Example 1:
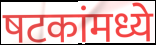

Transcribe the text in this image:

षटकांमध्ये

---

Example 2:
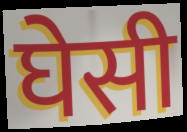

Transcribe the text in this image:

घेसी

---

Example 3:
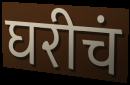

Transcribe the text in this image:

घरीचं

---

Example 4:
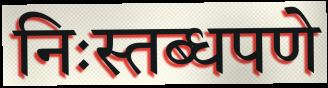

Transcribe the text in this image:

निःस्तब्धपणे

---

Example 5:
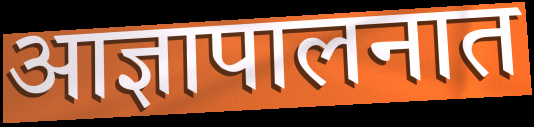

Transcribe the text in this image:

आज्ञापालनात